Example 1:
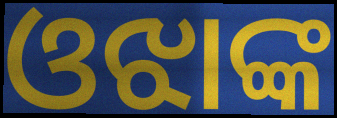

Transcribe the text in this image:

ଓଝାଙ୍କ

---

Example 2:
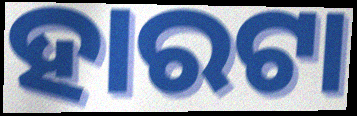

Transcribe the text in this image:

ହାରଟା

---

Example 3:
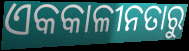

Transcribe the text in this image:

ଏକକାଳୀନତାରୁ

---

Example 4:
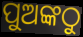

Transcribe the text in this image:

ପୁଅଙ୍କଠୁ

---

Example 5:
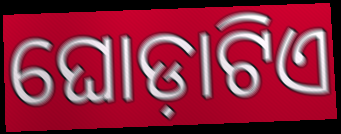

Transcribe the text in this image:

ଘୋଡ଼ାଟିଏ